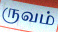
ருவம்